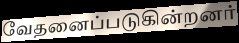
வேதனைப்படுகின்றனர்